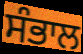
ਸੰਭਾਲ